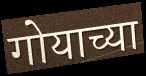
गोयाच्या